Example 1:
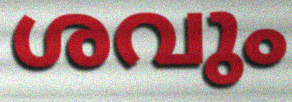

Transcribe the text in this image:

ശവും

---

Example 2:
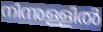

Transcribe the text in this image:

നിന്നുള്ളിൽ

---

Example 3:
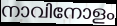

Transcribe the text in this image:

നാവിനോളം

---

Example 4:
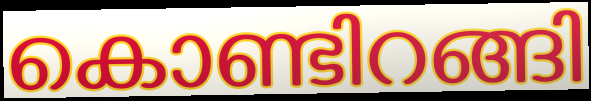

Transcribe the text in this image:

കൊണ്ടിറങ്ങി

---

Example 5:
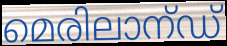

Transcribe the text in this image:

മെരിലാന്ഡ്